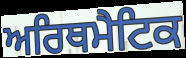
ਅਰਿਥਮੈਟਿਕ